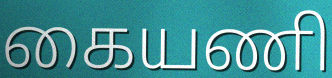
கையணி